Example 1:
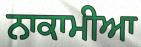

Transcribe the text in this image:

ਨਾਕਾਮੀਆ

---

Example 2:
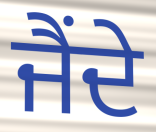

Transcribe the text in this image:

ਜੈਂਦੇ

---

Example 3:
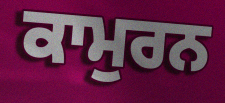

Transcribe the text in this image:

ਕਾਮੁਰਨ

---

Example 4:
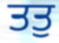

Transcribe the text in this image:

ਤਤੁ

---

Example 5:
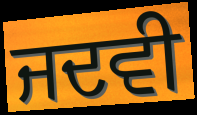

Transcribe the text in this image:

ਜਦਵੀ